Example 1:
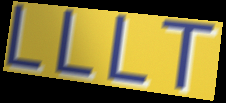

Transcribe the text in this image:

LLLT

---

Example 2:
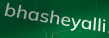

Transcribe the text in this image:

bhasheyalli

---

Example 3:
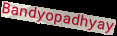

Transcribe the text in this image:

Bandyopadhyay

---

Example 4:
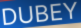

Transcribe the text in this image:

DUBEY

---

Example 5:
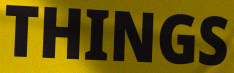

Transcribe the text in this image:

THINGS